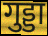
गुड्डा